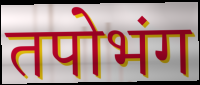
तपोभंग